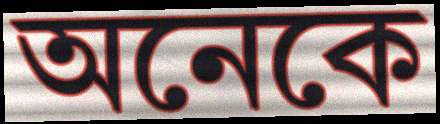
অনেকে